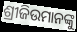
ଶ୍ରୀଜିଉମାନଙ୍କୁ